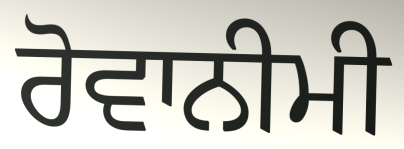
ਰੋਵਾਨੀਮੀ